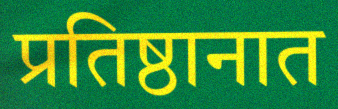
प्रतिष्ठानात